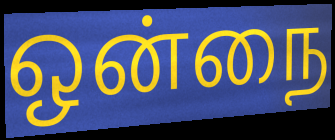
ஒன்நை